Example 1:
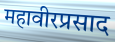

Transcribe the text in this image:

महावीरप्रसाद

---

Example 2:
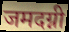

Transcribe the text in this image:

जमदग्नी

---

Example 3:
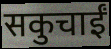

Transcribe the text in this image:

सकुचाईं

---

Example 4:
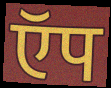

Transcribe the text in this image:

ऍप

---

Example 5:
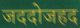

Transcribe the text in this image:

जददोजहद